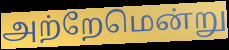
அற்றேமென்று